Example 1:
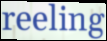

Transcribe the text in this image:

reeling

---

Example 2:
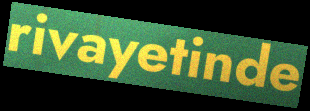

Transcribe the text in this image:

rivayetinde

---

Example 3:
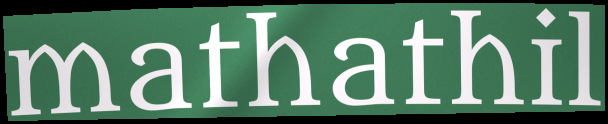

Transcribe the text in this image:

mathathil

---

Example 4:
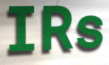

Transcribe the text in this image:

IRs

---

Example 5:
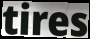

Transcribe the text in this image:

tires